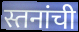
स्तनांची